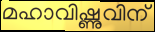
മഹാവിഷ്ണുവിന്